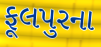
ફૂલપુરના